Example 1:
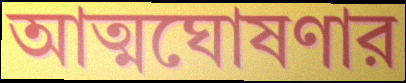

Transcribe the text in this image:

আত্মঘোষণার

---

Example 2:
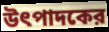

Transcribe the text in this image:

উৎপাদকের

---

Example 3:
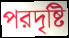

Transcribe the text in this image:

পরদৃষ্টি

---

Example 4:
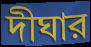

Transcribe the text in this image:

দীঘার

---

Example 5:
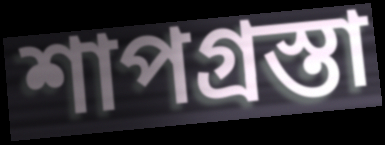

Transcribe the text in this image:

শাপগ্রস্তা